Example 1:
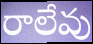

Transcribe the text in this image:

రాలేవు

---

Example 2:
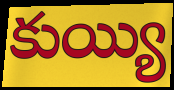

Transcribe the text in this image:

కుయ్యి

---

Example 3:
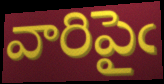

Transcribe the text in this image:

వారిపైఁ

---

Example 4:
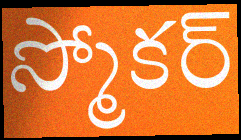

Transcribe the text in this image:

స్మోకర్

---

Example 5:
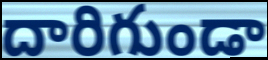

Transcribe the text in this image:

దారిగుండా